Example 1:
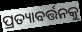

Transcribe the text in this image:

ପ୍ରତ୍ୟାବର୍ତ୍ତନକୁ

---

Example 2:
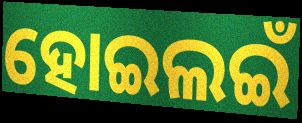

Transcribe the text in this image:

ହୋଇଲଇଁ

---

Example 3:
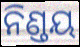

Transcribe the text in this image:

ନିଣ୍ଡୟ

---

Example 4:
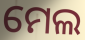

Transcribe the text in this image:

ମେଲ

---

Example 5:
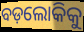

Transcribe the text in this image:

ବଡ଼ଲୋକିକୁ